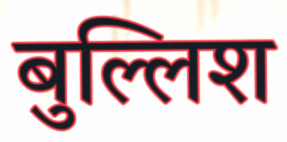
बुल्लिश